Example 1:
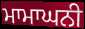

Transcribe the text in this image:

ਮਾਮਾਘਨੀ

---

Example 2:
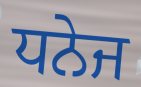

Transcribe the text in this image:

ਧਨੇਜ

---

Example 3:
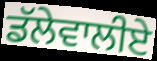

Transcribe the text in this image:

ਡੱਲੇਵਾਲੀਏ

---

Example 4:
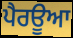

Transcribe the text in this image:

ਪੈਰਊਆ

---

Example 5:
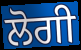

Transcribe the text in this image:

ਲੋਗੀ